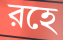
রহে